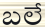
బలే